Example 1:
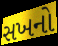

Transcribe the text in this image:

સખનો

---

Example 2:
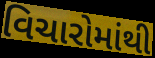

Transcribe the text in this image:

વિચારોમાંથી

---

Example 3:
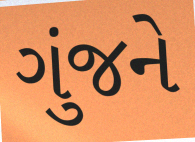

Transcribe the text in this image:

ગુંજને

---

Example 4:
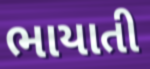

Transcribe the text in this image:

ભાયાતી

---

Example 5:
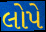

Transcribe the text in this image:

લોપે